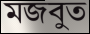
মজবুত